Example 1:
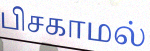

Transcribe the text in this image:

பிசகாமல்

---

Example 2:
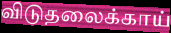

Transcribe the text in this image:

விடுதலைக்காய்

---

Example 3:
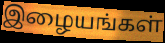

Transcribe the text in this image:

இழையங்கள்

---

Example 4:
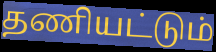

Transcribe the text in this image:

தணியட்டும்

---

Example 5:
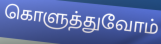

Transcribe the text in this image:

கொளுத்துவோம்